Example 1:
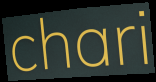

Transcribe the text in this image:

chari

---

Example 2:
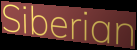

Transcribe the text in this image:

Siberian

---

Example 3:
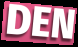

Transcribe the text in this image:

DEN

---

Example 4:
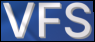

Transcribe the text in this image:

VFS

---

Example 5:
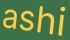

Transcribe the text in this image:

ashi